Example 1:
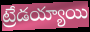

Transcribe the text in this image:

ట్రేడయ్యాయి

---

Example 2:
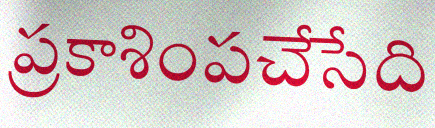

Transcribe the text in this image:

ప్రకాశింపచేసేది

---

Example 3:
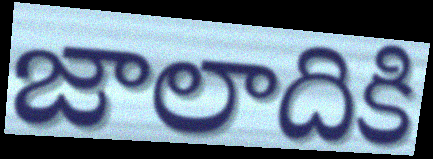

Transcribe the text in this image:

జాలాదికి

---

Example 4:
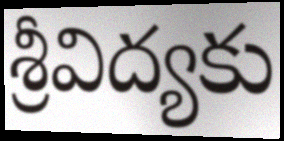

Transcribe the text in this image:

శ్రీవిద్యకు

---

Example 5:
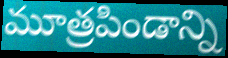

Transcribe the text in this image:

మూత్రపిండాన్ని